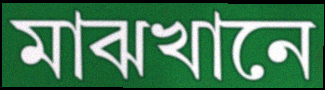
মাঝখানে